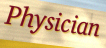
Physician